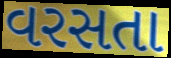
વરસતા